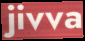
jivva